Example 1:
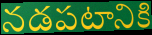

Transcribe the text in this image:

నడపటానికి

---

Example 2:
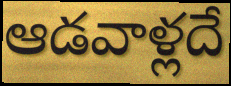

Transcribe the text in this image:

ఆడవాళ్లదే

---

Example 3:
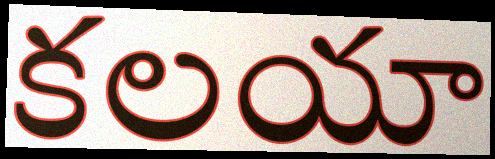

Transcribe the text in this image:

కలయా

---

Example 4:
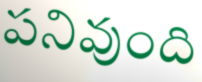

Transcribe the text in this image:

పనివుంది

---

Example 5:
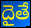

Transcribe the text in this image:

దైతే